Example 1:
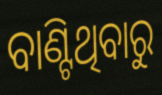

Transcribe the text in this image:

ବାଣ୍ଟିଥିବାରୁ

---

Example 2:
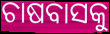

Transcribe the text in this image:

ଚାଷବାସକୁ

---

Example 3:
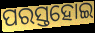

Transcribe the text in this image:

ପରସ୍ତହୋଇ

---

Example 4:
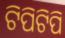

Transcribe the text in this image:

ଟିପିଟିପି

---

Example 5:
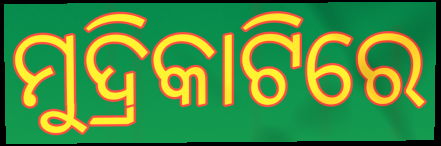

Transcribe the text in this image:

ମୁଦ୍ରିକାଟିରେ